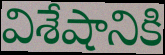
విశేషానికి